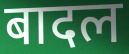
बादल